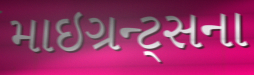
માઇગ્રન્ટ્સના